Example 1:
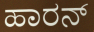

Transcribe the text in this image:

ಹಾರನ್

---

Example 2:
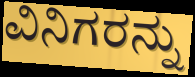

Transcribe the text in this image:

ವಿನಿಗರನ್ನು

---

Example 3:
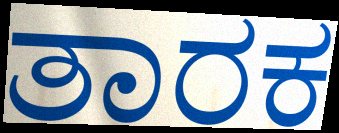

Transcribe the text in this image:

ತಾರಕ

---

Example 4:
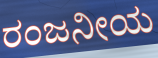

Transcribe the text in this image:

ರಂಜನೀಯ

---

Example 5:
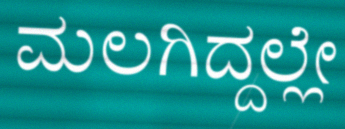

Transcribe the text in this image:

ಮಲಗಿದ್ದಲ್ಲೇ